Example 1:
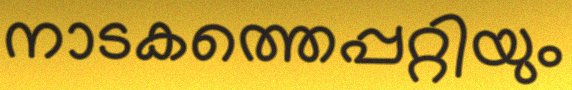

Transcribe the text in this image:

നാടകത്തെപ്പറ്റിയും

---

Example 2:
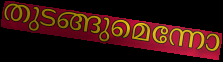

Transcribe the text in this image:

തുടങ്ങുമെന്നോ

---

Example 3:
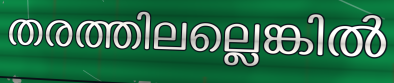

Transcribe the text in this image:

തരത്തിലല്ലെങ്കിൽ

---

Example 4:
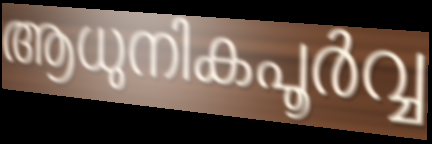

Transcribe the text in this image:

ആധുനികപൂർവ്വ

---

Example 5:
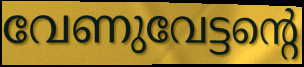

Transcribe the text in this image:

വേണുവേട്ടന്റെ